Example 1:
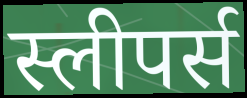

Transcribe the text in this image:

स्लीपर्स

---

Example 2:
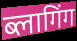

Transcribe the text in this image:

ब्लागिंग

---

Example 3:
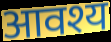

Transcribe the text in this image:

आवश्य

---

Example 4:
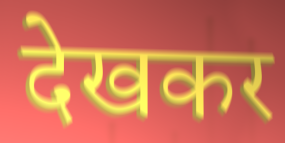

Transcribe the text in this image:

देखकर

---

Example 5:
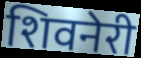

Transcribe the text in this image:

शिवनेरी